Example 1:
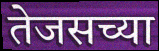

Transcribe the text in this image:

तेजसच्या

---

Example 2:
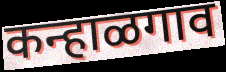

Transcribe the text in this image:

कन्हाळगाव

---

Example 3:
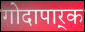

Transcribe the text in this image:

गोदापार्क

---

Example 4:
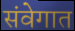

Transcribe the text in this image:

संवेगात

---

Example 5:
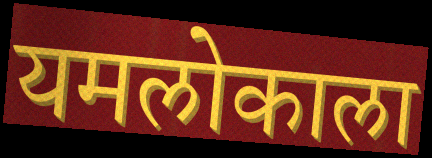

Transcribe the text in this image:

यमलोकाला